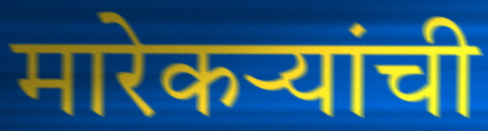
मारेकऱ्यांची